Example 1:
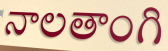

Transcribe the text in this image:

నాలతాంగి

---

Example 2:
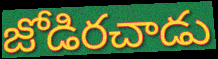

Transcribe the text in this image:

జోడిరచాడు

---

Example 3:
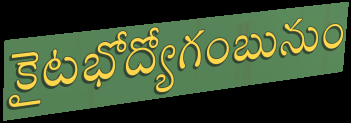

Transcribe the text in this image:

కైటభోద్యోగంబునుం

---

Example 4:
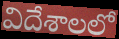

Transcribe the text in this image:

విదేశాలలో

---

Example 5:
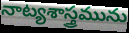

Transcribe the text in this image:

నాట్యశాస్త్రమును